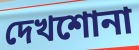
দেখশোনা